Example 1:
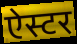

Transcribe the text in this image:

ऐस्टर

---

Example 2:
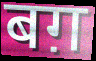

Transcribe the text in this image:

बग़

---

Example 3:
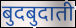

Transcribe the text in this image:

बुदबुदाती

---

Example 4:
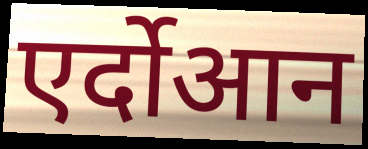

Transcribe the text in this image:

एर्दोआन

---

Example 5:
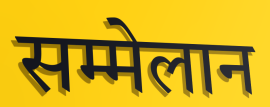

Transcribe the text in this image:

सम्मेलान